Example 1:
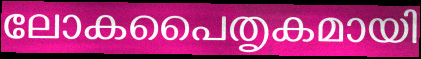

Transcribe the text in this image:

ലോകപൈതൃകമായി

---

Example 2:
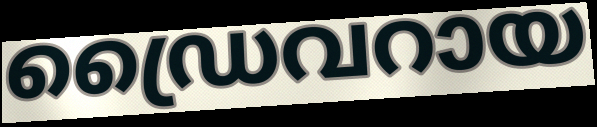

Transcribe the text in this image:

ഡ്രൈവറായ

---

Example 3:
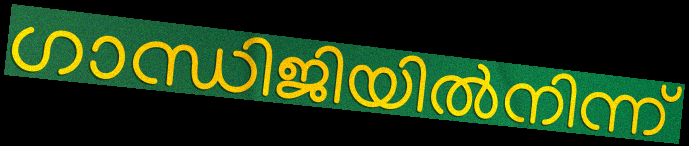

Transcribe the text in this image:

ഗാന്ധിജിയിൽനിന്ന്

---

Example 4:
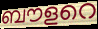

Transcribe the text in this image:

ബൗളറെ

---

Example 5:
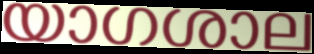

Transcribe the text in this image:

യാഗശാല